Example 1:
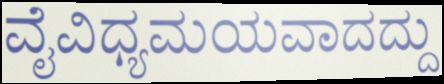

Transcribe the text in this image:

ವೈವಿಧ್ಯಮಯವಾದದ್ದು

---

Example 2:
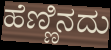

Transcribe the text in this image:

ಹೆಣ್ಣಿನದು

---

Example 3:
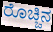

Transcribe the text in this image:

ರೊಚ್ಚಿನ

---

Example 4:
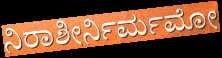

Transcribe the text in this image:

ನಿರಾಶೀರ್ನಿರ್ಮಮೋ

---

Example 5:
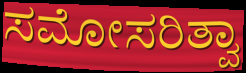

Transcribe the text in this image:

ಸಮೋಸರಿತ್ವಾ